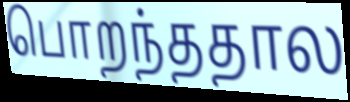
பொறந்ததால